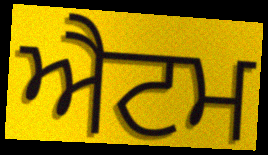
ਐਟਮ